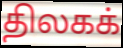
திலகக்